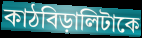
কাঠবিড়ালিটাকে